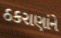
ઠકરાણાંને